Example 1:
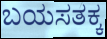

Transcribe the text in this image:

ಬಯಸತಕ್ಕ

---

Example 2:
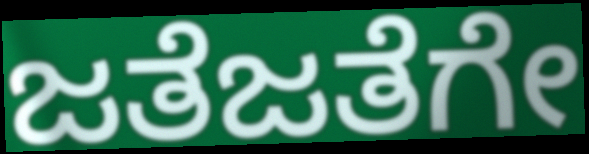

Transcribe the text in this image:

ಜತೆಜತೆಗೇ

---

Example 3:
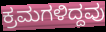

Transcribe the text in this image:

ಕ್ರಮಗಳಿದ್ದವು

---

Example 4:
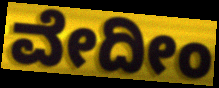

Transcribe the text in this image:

ವೇದೀಂ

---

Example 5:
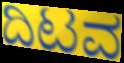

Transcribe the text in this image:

ದಿಟವ